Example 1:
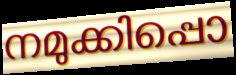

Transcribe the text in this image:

നമുക്കിപ്പൊ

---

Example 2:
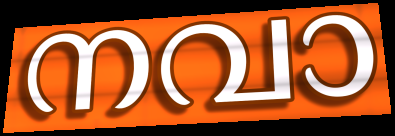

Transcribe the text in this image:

നവാ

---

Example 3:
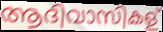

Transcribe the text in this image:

ആദിവാസികള്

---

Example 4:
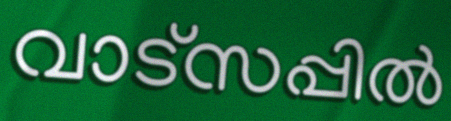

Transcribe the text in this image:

വാട്സപ്പിൽ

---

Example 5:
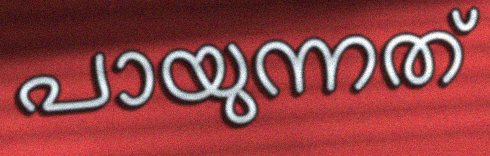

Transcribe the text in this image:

പായുന്നത്